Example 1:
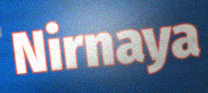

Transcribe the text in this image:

Nirnaya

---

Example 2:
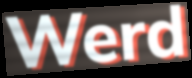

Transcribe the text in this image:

Werd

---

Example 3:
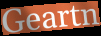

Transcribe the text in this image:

Geartn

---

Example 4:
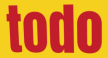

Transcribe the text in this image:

todo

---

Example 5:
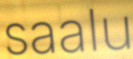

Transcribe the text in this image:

saalu